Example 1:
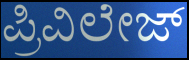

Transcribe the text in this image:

ಪ್ರಿವಿಲೇಜ್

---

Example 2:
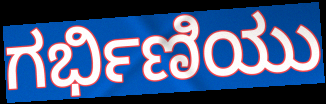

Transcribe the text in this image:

ಗರ್ಭಿಣಿಯು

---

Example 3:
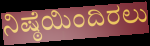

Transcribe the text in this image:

ನಿಷ್ಠೆಯಿಂದಿರಲು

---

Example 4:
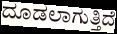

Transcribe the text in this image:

ದೂಡಲಾಗುತ್ತಿದೆ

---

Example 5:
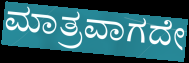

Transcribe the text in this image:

ಮಾತ್ರವಾಗದೇ